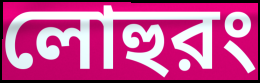
লোহুরং